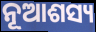
ନୂଆଶସ୍ୟ